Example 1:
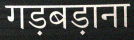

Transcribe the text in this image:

गड़बड़ाना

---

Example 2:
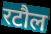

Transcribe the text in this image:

रटौल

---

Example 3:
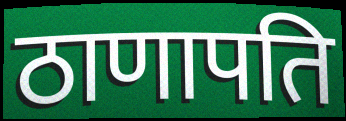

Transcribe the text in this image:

ठाणापति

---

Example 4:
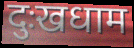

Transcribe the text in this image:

दुःखधाम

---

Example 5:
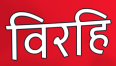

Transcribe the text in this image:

विरहि